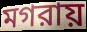
মগরায়